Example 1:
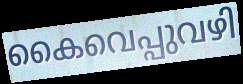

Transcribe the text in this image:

കൈവെപ്പുവഴി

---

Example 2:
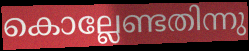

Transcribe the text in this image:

കൊല്ലേണ്ടതിന്നു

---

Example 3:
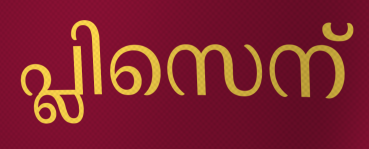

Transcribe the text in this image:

പ്ലിസെന്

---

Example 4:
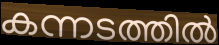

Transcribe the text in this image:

കന്നടത്തിൽ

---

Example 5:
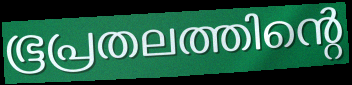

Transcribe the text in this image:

ഭൂപ്രതലത്തിന്റെ